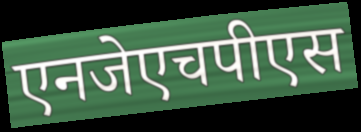
एनजेएचपीएस